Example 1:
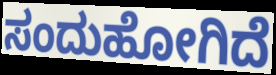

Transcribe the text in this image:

ಸಂದುಹೋಗಿದೆ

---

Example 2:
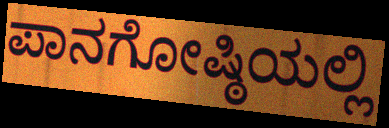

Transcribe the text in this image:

ಪಾನಗೋಷ್ಠಿಯಲ್ಲಿ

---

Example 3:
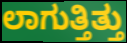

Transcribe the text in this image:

ಲಾಗುತ್ತಿತ್ತು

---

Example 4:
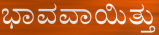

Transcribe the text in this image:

ಭಾವವಾಯಿತ್ತು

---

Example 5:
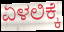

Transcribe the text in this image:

ಏಳಲಿಕ್ಕೆ